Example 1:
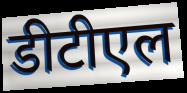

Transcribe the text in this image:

डीटीएल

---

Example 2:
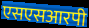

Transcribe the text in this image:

एसएसआरपी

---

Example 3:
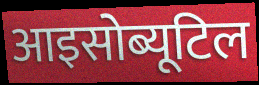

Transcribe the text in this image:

आइसोब्यूटिल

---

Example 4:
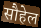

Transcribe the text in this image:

सौहेल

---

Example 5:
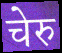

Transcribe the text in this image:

चेरु